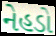
નેહડો